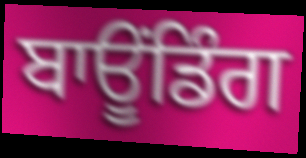
ਬਾਊਂਡਿੰਗ